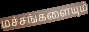
மச்சங்களையும்